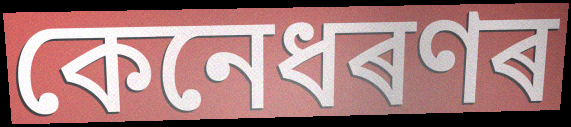
কেনেধৰণৰ